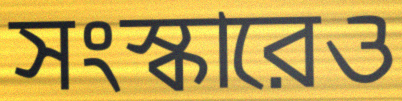
সংস্কারেও